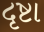
દૃષ્ટા